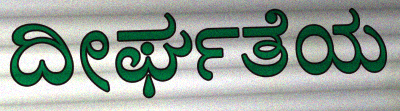
ದೀರ್ಘತೆಯ